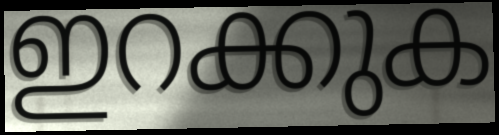
ഇറക്കുക